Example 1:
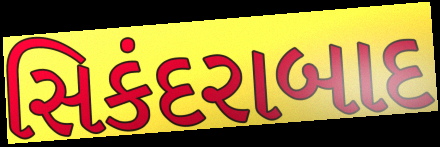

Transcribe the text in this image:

સિકંદરાબાદ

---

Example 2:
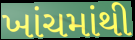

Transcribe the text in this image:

ખાંચમાંથી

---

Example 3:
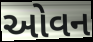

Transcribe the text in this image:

ઓવન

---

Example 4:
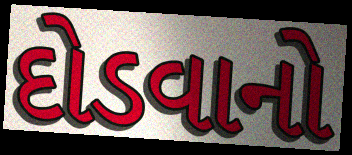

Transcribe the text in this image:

દોડવાનો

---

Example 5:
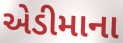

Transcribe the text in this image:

એડીમાના